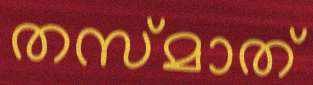
തസ്മാത്